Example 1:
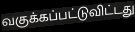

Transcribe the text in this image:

வகுக்கப்பட்டுவிட்டது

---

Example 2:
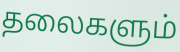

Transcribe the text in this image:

தலைகளும்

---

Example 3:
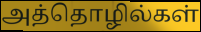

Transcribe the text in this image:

அத்தொழில்கள்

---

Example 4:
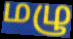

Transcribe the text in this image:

மழு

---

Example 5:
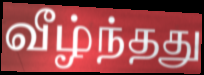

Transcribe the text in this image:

வீழ்ந்தது